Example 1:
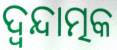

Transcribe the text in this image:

ଦ୍ଵନ୍ଦାତ୍ମକ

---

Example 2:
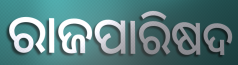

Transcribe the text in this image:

ରାଜପାରିଷଦ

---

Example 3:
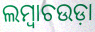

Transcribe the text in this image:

ଲମ୍ୱାଚଉଡ଼ା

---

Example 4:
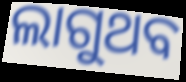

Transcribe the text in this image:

ଲାଗୁଥବ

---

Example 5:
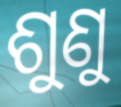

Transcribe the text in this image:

ଶୁଣୁ